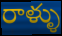
రాళ్ళు